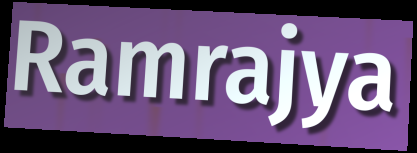
Ramrajya